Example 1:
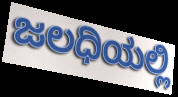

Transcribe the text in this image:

ಜಲಧಿಯಲ್ಲಿ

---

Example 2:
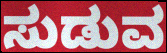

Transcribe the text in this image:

ಸುಡುವ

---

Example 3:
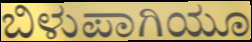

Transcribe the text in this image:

ಬಿಳುಪಾಗಿಯೂ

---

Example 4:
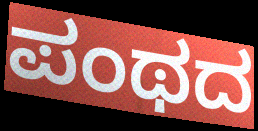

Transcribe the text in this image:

ಪಂಥದ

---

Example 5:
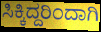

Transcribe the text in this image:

ಸಿಕ್ಕಿದ್ದರಿಂದಾಗಿ